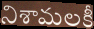
నిశామలకీ